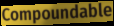
Compoundable